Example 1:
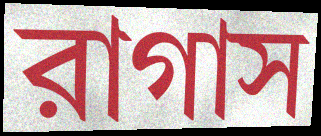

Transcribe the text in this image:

রাগাস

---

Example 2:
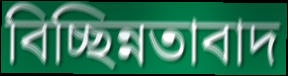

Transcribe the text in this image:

বিচ্ছিন্নতাবাদ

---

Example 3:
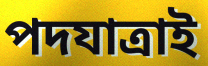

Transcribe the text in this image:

পদযাত্রাই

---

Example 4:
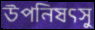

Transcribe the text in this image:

উপনিষৎসু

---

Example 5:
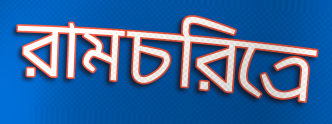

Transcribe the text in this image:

রামচরিত্রে